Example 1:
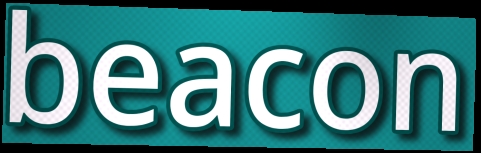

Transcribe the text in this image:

beacon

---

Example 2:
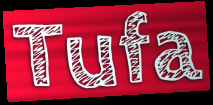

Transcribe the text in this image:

Tufa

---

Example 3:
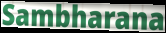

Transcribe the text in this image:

Sambharana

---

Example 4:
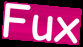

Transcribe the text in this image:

Fux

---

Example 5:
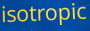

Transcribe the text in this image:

isotropic